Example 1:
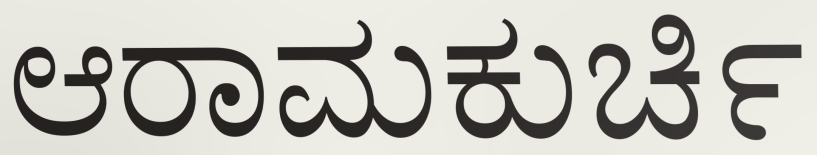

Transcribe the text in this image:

ಆರಾಮಕುರ್ಚಿ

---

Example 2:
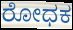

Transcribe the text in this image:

ರೋಧಕ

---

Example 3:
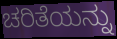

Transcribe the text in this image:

ಚರಿತೆಯನ್ನು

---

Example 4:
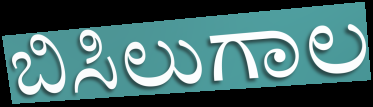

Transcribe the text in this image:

ಬಿಸಿಲುಗಾಲ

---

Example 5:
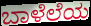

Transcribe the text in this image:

ಬಾಳೆಲೆಯ